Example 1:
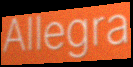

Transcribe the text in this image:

Allegra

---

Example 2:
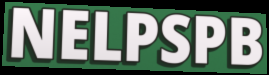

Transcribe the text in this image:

NELPSPB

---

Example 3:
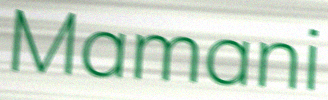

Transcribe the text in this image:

Mamani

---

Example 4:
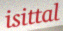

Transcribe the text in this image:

isittal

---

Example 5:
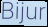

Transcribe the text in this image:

Bijur